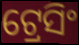
ଟ୍ରେସିଂ